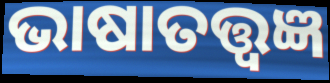
ଭାଷାତତ୍ତ୍ୱଜ୍ଞ